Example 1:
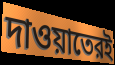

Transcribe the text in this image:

দাওয়াতেরই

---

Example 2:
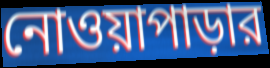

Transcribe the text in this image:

নোওয়াপাড়ার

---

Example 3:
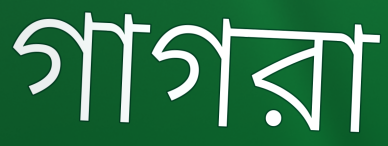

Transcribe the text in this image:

গাগরা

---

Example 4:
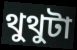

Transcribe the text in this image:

থুথুটা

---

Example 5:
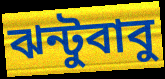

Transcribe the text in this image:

ঝন্টুবাবু